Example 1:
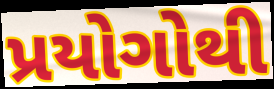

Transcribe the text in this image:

પ્રયોગોથી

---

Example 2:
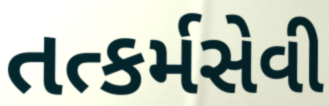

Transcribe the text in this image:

તત્કર્મસેવી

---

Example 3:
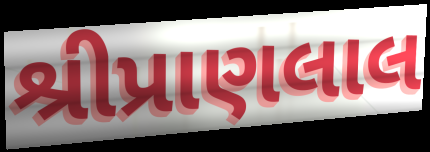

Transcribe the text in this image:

શ્રીપ્રાણલાલ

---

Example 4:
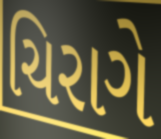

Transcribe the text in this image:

ચિરાગે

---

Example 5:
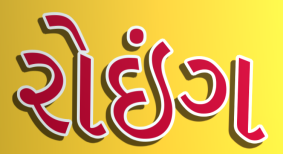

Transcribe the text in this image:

રોઇંગ